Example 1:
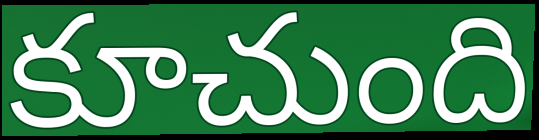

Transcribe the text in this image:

కూచుంది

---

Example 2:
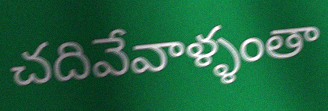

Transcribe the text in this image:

చదివేవాళ్ళంతా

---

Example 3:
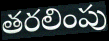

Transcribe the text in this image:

తరలింపు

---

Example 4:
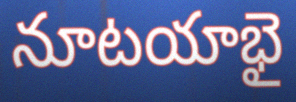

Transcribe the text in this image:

నూటయాభై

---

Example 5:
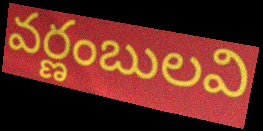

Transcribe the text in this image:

వర్ణంబులవి